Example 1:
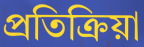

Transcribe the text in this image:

প্ৰতিক্ৰিয়া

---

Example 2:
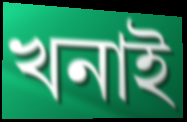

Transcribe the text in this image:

খনাই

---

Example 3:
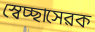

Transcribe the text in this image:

স্বেচ্ছাসেৱক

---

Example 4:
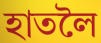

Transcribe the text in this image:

হাতলৈ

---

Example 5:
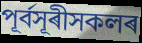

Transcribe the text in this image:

পূৰ্বসূৰীসকলৰ